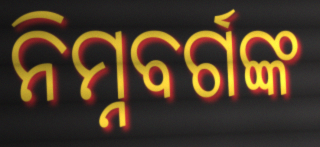
ନିମ୍ନବର୍ଗଙ୍କ